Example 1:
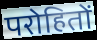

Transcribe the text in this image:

परोहितों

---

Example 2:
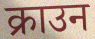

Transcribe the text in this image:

क्राउन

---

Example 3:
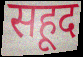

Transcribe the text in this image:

सहूद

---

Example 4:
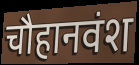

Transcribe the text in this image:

चौहानवंश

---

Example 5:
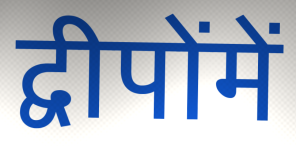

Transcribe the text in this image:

द्वीपोंमें